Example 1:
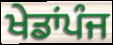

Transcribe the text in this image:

ਖੇਡਾਂਪੰਜ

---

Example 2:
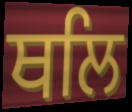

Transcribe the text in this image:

ਥਲਿ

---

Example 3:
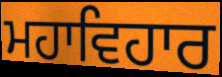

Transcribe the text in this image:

ਮਹਾਵਿਹਾਰ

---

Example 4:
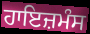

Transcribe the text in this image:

ਹਾਇਜ਼ਮੰਸ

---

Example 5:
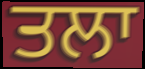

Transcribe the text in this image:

ਤਲਾ